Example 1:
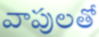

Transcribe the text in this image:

వాపులతో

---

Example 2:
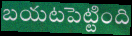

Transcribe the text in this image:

బయటపెట్టింది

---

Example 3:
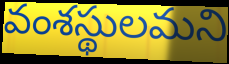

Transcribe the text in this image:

వంశస్థులమని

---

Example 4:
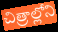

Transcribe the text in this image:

చిత్రాల్లోని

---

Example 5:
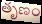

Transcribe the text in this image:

తృణం